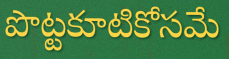
పొట్టకూటికోసమే